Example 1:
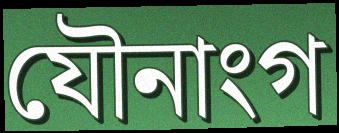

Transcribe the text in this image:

যৌনাংগ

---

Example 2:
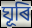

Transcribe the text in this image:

ঘূৰি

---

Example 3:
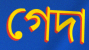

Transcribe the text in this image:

গেদা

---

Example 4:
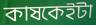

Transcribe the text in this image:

কাষকেইটা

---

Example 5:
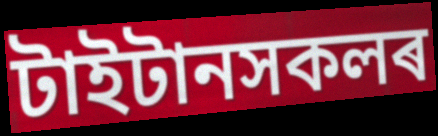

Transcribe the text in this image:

টাইটানসকলৰ